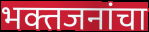
भक्तजनांचा